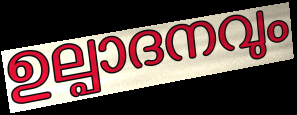
ഉല്പാദനവും